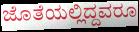
ಜೊತೆಯಲ್ಲಿದ್ದವರೂ